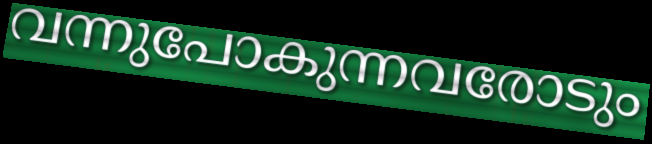
വന്നുപോകുന്നവരോടും